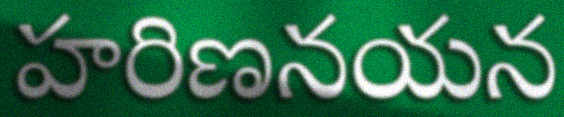
హరిణనయన